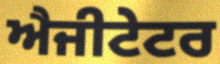
ਐਜੀਟੇਟਰ